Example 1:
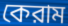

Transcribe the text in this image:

কেরাম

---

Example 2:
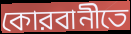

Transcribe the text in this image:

কোরবানীতে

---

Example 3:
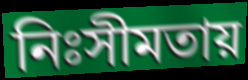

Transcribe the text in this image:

নিঃসীমতায়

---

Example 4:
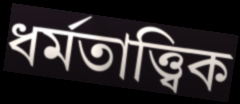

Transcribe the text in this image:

ধর্মতাত্ত্বিক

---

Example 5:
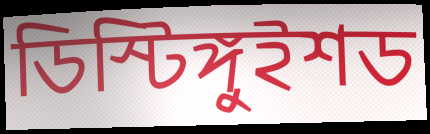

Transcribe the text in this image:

ডিস্টিঙ্গুইশড